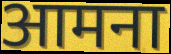
आमना